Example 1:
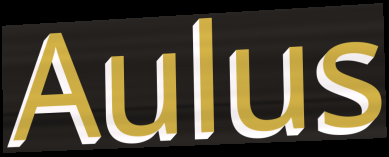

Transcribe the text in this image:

Aulus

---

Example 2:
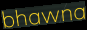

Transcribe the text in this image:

bhawna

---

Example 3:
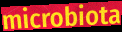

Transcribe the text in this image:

microbiota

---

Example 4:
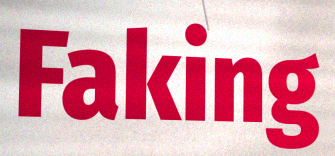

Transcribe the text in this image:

Faking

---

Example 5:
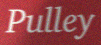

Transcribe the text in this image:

Pulley